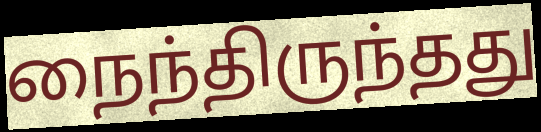
நைந்திருந்தது